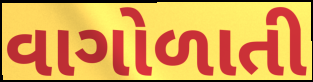
વાગોળાતી